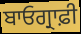
ਬਾਓਗ੍ਰਾਫ਼ੀ